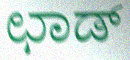
ಛಾಡ್